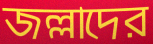
জল্লাদের